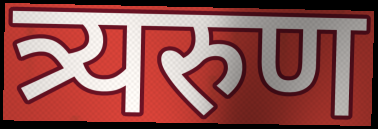
त्र्यरुण